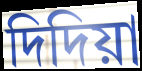
দিদিয়া